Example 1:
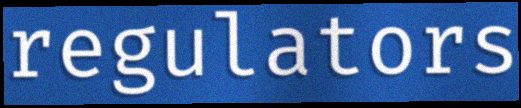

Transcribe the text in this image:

regulators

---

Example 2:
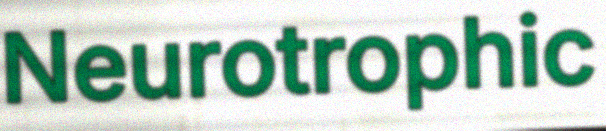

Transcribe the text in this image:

Neurotrophic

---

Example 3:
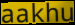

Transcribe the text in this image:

aakhu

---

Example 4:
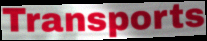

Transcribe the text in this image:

Transports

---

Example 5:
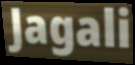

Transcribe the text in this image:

Jagali